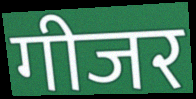
गीजर